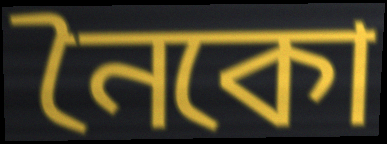
নৈকো